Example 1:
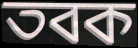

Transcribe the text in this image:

তবক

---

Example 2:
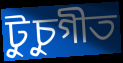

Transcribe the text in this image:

টুচুগীত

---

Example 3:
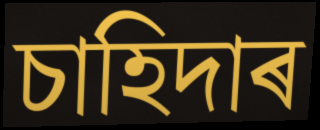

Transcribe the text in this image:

চাহিদাৰ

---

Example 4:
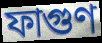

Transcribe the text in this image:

ফাগুণ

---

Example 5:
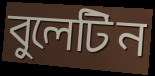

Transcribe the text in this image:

বুলেটিন